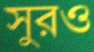
সুরও